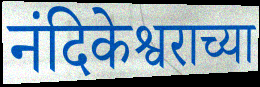
नंदिकेश्वराच्या